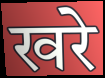
खरे